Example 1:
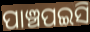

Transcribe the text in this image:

ପାଞ୍ଚପଇସି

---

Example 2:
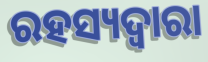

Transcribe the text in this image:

ରହସ୍ୟଦ୍ଵାରା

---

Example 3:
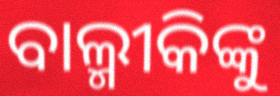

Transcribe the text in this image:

ବାଲ୍ମୀକିଙ୍କୁ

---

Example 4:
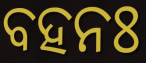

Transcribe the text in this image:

ବହନଃ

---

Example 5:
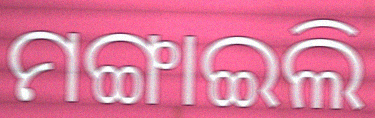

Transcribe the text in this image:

ମଙ୍ଗାଇଲି